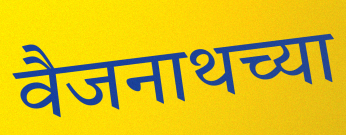
वैजनाथच्या